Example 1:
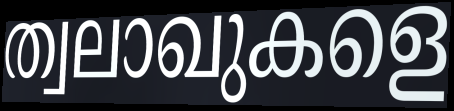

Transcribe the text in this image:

ത്വലാഖുകളെ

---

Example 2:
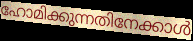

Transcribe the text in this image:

ഹോമിക്കുന്നതിനേക്കാൾ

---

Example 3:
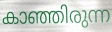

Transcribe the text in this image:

കാഞ്ഞിരുന്ന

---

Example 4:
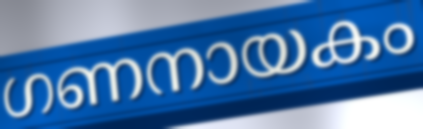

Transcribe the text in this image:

ഗണനായകം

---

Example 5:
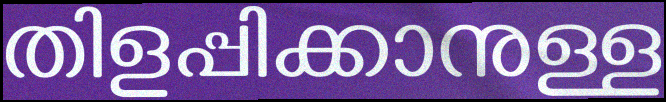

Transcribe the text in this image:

തിളപ്പിക്കാനുള്ള